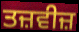
ਤਜ਼ਵੀਜ਼